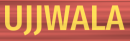
UJJWALA